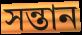
সন্তান